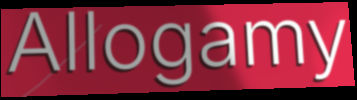
Allogamy